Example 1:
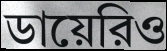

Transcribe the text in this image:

ডায়েরিও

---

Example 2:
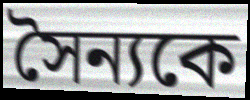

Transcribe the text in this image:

সৈন্যকে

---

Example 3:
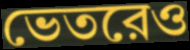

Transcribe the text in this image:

ভেতরেও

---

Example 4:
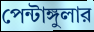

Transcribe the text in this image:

পেন্টাঙ্গুলার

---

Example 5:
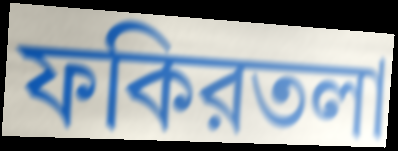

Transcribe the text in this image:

ফকিরতলা